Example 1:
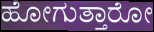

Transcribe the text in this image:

ಹೋಗುತ್ತಾರೋ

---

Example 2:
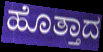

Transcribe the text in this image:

ಹೊತ್ತಾದ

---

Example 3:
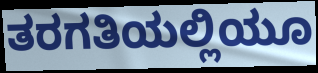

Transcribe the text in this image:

ತರಗತಿಯಲ್ಲಿಯೂ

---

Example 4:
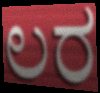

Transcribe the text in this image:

ಲರ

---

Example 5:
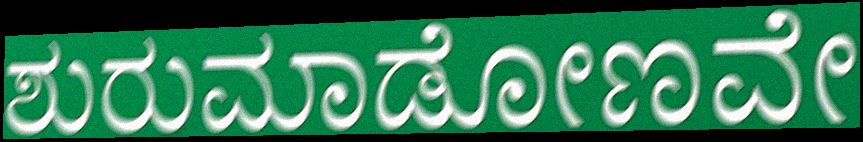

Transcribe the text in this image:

ಶುರುಮಾಡೋಣವೇ